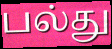
பல்து